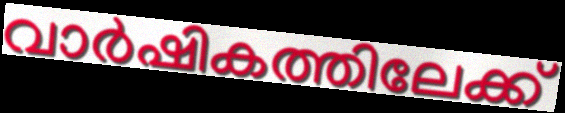
വാർഷികത്തിലേക്ക്